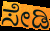
ಸೇಡಿ